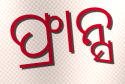
ଫ୍ରାନ୍ସ